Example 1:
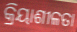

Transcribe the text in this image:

କ୍ରିୟାଶୀଳତା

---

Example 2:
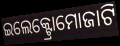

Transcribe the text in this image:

ଇଲେକ୍ଟ୍ରୋମୋଜାଟି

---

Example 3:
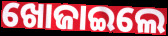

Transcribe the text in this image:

ଖୋଜାଇଲେ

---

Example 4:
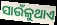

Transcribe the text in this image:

ସାଉଁଳୁଥାଏ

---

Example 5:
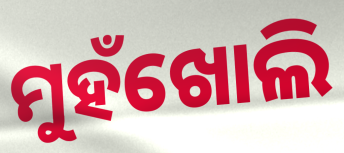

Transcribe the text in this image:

ମୁହଁଖୋଲି